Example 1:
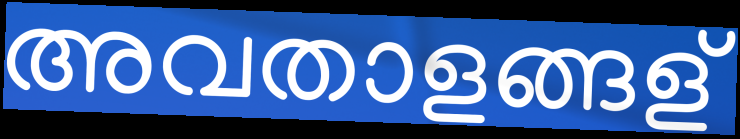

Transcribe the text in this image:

അവതാളങ്ങള്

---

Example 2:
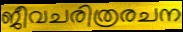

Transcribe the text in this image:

ജീവചരിത്രരചന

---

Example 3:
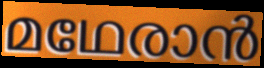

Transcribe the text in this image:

മഥേരാൻ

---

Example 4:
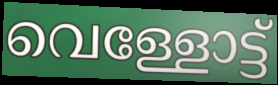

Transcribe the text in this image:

വെള്ളോട്ട്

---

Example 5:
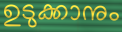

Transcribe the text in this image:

ഉടുക്കാനും